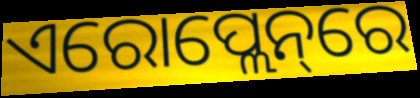
ଏରୋପ୍ଲେନ୍‌ରେ